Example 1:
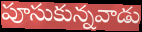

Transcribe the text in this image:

పూసుకున్నవాడు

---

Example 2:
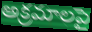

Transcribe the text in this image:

అక్రమాలపై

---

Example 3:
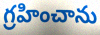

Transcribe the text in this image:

గ్రహించాను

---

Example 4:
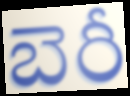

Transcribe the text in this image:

బెరీ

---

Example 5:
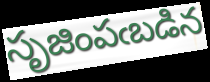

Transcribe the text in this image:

సృజింపఁబడిన